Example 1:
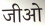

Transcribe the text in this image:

जीओ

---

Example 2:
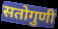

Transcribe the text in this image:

सतोगुणी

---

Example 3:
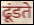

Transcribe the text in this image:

ढूंडते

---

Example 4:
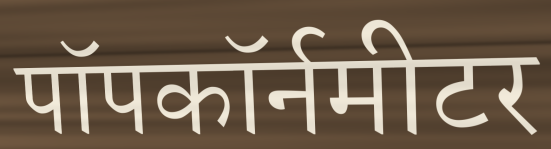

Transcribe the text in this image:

पॉपकॉर्नमीटर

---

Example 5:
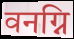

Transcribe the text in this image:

वनग्नि